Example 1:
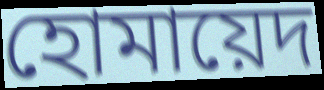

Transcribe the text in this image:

হোমায়েদ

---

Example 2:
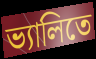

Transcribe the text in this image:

ভ্যালিতে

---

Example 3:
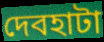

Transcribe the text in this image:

দেবহাটা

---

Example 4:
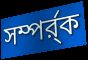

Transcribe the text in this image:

সম্পর্র্ক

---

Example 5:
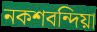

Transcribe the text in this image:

নকশবন্দিয়া